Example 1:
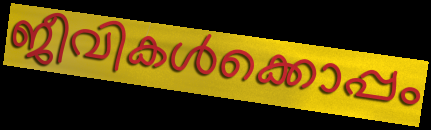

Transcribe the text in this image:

ജീവികൾക്കൊപ്പം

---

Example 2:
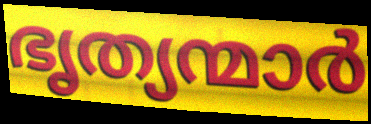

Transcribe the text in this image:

ഭൃത്യന്മാർ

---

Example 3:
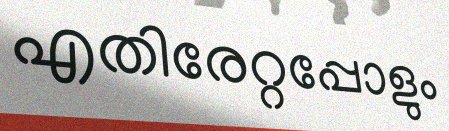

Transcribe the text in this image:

എതിരേറ്റപ്പോളും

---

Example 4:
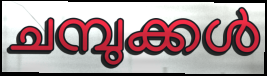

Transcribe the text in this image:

ചമ്പുക്കൾ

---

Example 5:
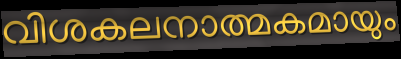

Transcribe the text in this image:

വിശകലനാത്മകമായും